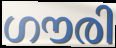
ഗൗരി